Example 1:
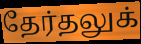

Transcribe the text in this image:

தேர்தலுக்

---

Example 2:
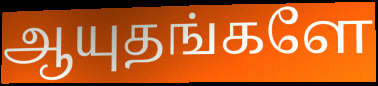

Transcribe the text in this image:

ஆயுதங்களே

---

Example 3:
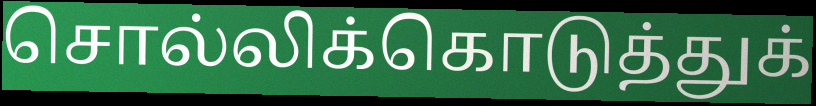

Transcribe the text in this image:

சொல்லிக்கொடுத்துக்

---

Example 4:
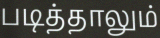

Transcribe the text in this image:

படித்தாலும்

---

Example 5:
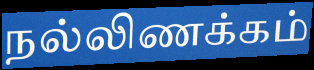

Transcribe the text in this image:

நல்லிணக்கம்